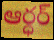
ఆర్ధర్